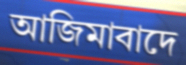
আজিমাবাদে